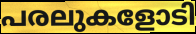
പരലുകളോടി